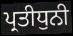
ਪ੍ਰਤੀਧੁਨੀ